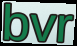
bvr